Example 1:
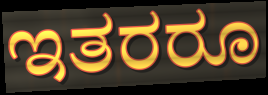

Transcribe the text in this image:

ಇತರರೂ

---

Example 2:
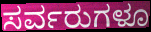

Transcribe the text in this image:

ಸರ್ವರುಗಳೂ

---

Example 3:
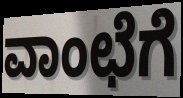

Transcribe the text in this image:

ವಾಂಛೆಗೆ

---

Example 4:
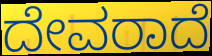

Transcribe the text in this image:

ದೇವರಾದೆ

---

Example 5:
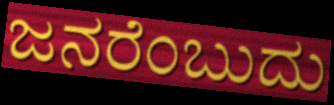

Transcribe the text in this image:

ಜನರೆಂಬುದು